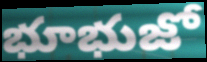
భూభుజో